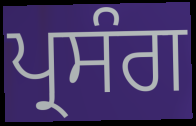
ਪ੍ਰਸੰਗ